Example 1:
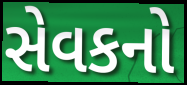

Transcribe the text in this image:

સેવકનો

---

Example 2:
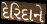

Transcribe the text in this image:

દેરિદાને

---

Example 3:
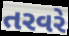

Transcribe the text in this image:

તરવરે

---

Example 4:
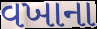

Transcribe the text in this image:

વખાના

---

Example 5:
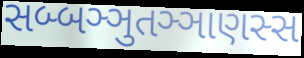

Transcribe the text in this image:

સબ્બઞ્ઞુતઞ્ઞાણસ્સ